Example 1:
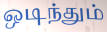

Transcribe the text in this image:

ஒடிந்தும்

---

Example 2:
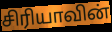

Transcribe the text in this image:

சிரியாவின்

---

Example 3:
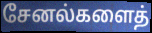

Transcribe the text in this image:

சேனல்களைத்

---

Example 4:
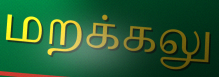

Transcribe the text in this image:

மறக்கலு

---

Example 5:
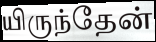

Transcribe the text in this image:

யிருந்தேன்